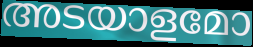
അടയാളമോ